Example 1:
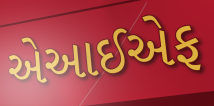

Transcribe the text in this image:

એઆઈએફ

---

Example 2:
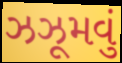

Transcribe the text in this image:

ઝઝૂમવું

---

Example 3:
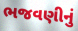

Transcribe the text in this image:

ભજવણીનું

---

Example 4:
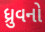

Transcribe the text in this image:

ધ્રુવનો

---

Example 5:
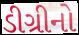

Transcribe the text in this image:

ડીગ્રીનો